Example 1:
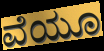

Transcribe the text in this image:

ವೆಯೂ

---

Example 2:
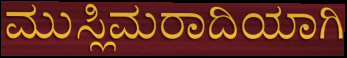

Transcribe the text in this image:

ಮುಸ್ಲಿಮರಾದಿಯಾಗಿ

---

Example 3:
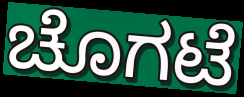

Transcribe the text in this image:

ಚೊಗಟೆ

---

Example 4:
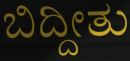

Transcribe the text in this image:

ಬಿದ್ದೀತು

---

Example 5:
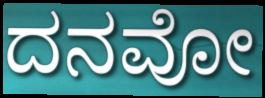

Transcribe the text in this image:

ದನವೋ